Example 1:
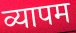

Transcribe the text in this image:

व्यापम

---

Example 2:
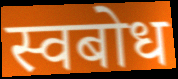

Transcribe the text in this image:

स्वबोध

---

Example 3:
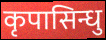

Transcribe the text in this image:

कृपासिन्धु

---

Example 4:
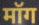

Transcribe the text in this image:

मॉग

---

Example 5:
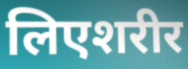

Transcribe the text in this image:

लिएशरीर